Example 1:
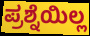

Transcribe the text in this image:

ಪ್ರಶ್ನೆಯಿಲ್ಲ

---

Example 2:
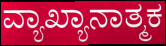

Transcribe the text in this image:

ವ್ಯಾಖ್ಯಾನಾತ್ಮಕ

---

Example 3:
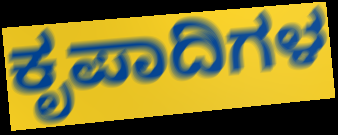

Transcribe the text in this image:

ಕೃಪಾದಿಗಳ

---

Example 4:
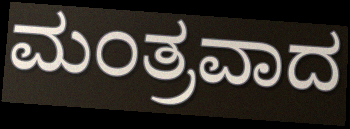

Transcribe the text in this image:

ಮಂತ್ರವಾದ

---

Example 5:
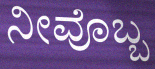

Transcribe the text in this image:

ನೀವೊಬ್ಬ